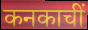
कनकाचीं